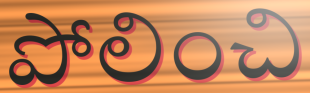
పోలించి